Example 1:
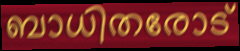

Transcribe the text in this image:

ബാധിതരോട്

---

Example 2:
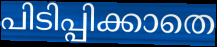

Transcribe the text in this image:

പിടിപ്പിക്കാതെ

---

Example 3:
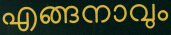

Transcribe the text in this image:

എങ്ങനാവും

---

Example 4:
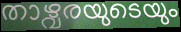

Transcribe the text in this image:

താഴ്വരയുടെയും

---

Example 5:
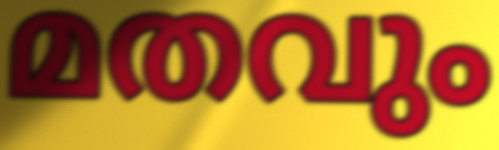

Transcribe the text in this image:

മതവും